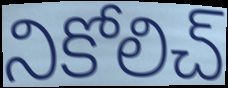
నికోలిచ్